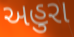
અહુરા